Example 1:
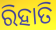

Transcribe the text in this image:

ରିହାତି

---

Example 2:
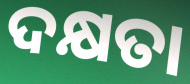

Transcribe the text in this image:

ଦକ୍ଷତା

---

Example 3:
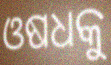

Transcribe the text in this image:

ଓଷଧକୁ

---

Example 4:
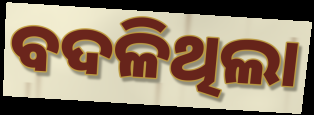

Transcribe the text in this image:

ବଦଳିଥିଲା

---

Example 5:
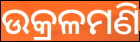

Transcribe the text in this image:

ଉକ୍ରଳମଣି